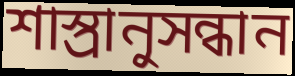
শাস্ত্রানুসন্ধান